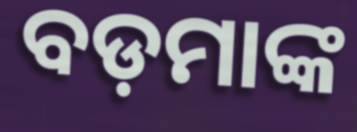
ବଡ଼ମାଙ୍କ